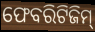
ଫେବରିଟିଜିମ୍